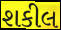
શકીલ